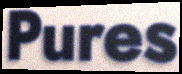
Pures